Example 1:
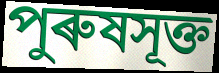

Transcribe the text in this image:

পুৰুষসূক্ত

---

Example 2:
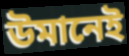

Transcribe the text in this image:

উমানেই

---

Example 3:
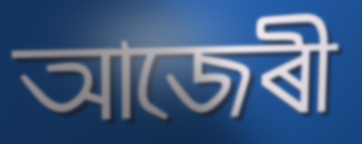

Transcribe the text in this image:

আজেৰী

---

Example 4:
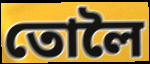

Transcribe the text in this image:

তোলৈ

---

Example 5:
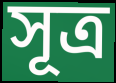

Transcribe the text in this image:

সূত্ৰ